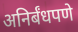
अनिर्बंधपणे